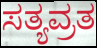
ಸತ್ಯವ್ರತ